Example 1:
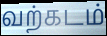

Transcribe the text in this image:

வற்கடம்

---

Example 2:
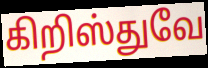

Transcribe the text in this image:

கிறிஸ்துவே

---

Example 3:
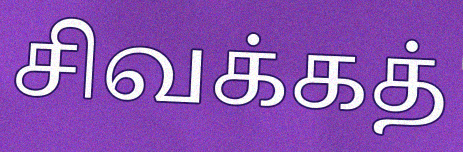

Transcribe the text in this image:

சிவக்கத்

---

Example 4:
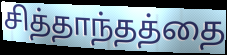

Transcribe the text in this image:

சித்தாந்தத்தை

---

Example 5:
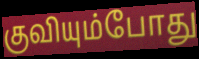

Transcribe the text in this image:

குவியும்போது